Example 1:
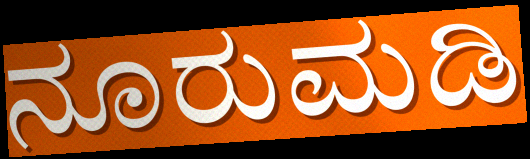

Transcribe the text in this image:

ನೂರುಮಡಿ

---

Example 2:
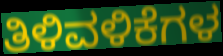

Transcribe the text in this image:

ತಿಳಿವಳಿಕೆಗಳ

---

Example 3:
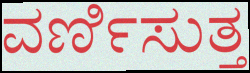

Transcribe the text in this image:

ವರ್ಣಿಸುತ್ತ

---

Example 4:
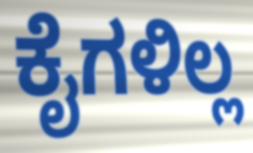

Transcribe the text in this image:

ಕೈಗಳಿಲ್ಲ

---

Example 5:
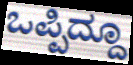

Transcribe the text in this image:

ಒಪ್ಪಿದ್ದೂ